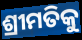
ଶ୍ରୀମତିକୁ